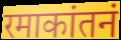
रमाकांतनं